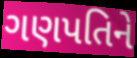
ગણપતિને